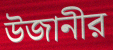
উজানীর